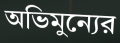
অভিমুন্যের